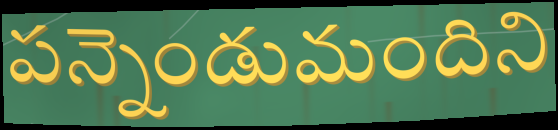
పన్నెండుమందిని